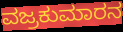
ವಜ್ರಕುಮಾರನ